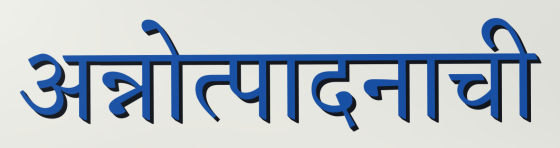
अन्नोत्पादनाची